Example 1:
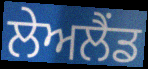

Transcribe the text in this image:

ਲੇਅਲੈਂਡ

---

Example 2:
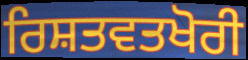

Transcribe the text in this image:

ਰਿਸ਼ਤਵਤਖੋਰੀ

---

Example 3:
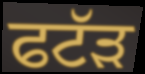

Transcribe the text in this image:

ਫਟੱੜ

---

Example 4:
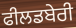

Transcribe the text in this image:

ਫੀਲਡਬੇਰੀ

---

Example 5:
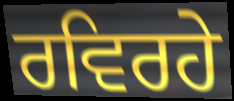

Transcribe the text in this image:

ਰਵਿਰਹੇ